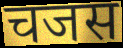
चजस